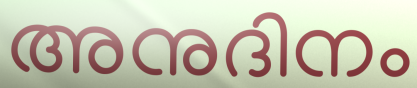
അനുദിനം